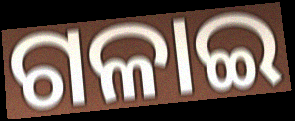
ଗଳାଇ